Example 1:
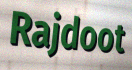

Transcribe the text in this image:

Rajdoot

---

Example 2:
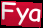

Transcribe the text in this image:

Fya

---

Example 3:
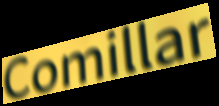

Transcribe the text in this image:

Comillar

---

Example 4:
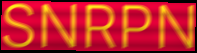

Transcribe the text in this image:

SNRPN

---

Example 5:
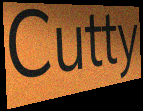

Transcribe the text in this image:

Cutty